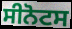
ਸੀਨੋਟਸ